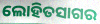
ଲୋହିତସାଗର